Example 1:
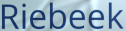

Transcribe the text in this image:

Riebeek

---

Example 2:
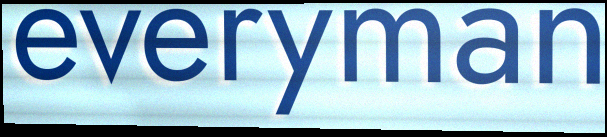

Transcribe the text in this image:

everyman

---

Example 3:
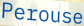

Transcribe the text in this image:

Perouse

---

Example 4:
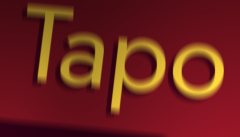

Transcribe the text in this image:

Tapo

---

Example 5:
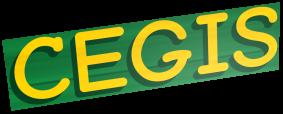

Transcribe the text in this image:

CEGIS